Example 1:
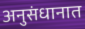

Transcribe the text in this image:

अनुसंधानात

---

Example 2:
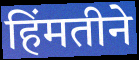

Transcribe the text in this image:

हिंमतीने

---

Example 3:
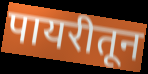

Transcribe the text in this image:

पायरीतून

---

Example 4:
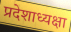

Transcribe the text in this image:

प्रदेशाध्यक्षा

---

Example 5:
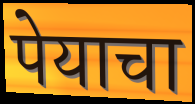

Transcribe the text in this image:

पेयाचा